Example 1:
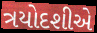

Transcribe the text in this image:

ત્રયોદશીએ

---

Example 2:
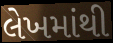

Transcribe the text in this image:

લેખમાંથી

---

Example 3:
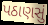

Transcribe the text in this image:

પઠાણસું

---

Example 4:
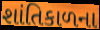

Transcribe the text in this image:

શાંતિકાળના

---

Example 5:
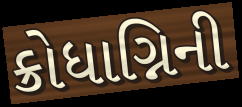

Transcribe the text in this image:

ક્રોધાગ્નિની